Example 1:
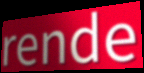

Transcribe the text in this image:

rende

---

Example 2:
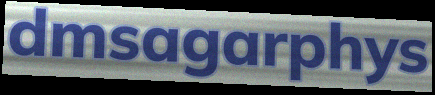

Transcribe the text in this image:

dmsagarphys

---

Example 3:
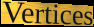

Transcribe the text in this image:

Vertices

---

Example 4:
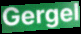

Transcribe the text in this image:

Gergel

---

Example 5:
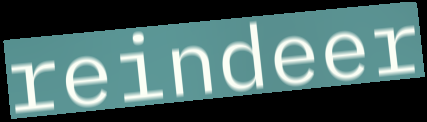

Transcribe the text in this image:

reindeer